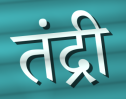
तंद्री